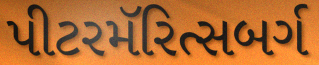
પીટરમૅરિત્સબર્ગ